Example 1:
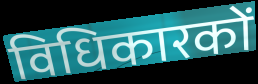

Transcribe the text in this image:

विधिकारकों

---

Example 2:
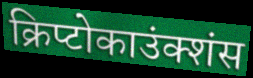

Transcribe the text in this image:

क्रिप्टोकाउंक्शंस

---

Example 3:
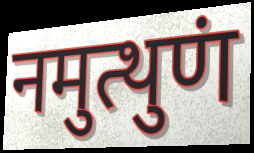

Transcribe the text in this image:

नमुत्थुणं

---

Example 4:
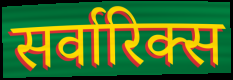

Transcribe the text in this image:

सर्वारिक्स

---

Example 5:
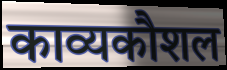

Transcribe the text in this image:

काव्यकौशल